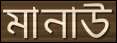
মানাউ